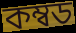
কম্বড